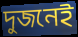
দুজনেই